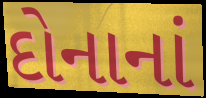
દોનાનાં